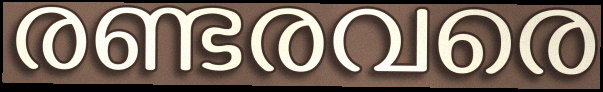
രണ്ടരവരെ